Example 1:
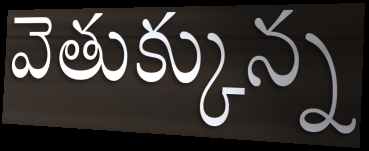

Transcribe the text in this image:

వెతుక్కున్న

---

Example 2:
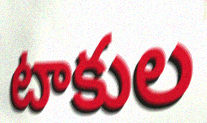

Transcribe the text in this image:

టాకుల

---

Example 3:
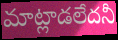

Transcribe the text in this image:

మాట్లాడలేదనీ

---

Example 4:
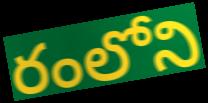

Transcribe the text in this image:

రంలోని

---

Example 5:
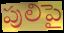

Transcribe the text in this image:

పులిపై